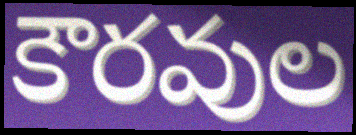
కౌరవుల